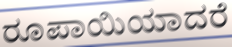
ರೂಪಾಯಿಯಾದರೆ